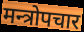
मन्त्रोपचार